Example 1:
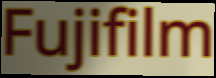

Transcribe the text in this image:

Fujifilm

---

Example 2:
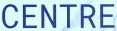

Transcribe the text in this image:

CENTRE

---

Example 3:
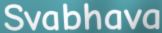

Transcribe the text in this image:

Svabhava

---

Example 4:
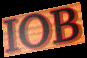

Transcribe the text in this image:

IOB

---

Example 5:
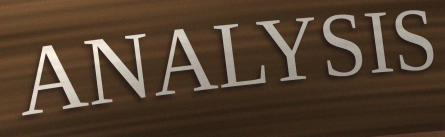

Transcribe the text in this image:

ANALYSIS